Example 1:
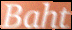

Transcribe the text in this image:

Baht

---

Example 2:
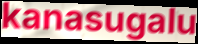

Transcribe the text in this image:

kanasugalu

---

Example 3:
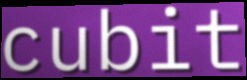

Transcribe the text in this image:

cubit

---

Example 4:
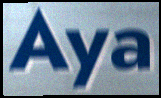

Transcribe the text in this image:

Aya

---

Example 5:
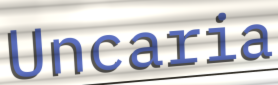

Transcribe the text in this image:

Uncaria